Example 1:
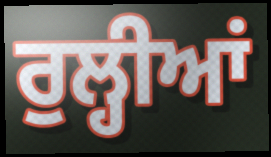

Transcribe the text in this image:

ਰੁਲ੍ਹੀਆਂ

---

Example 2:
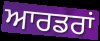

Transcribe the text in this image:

ਆਰਡਰਾਂ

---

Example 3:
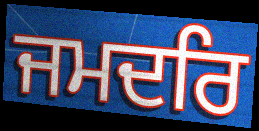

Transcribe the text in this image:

ਜਮਦਰਿ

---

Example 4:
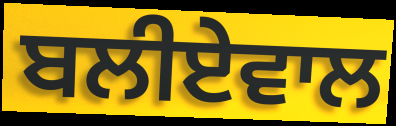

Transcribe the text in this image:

ਬਲੀਏਵਾਲ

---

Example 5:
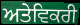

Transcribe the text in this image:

ਅਤੇਵਿਕਰੀ